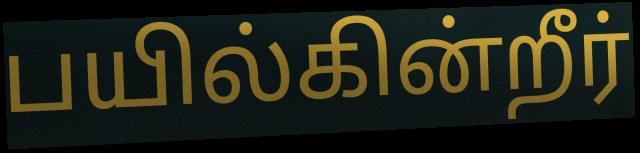
பயில்கின்றீர்